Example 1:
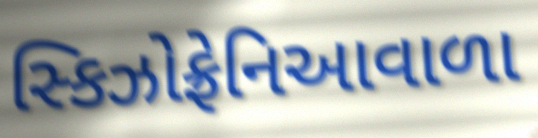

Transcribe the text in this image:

સ્કિઝોફ્રેનિઆવાળા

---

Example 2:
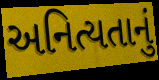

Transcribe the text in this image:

અનિત્યતાનું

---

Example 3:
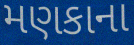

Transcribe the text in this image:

મણકાના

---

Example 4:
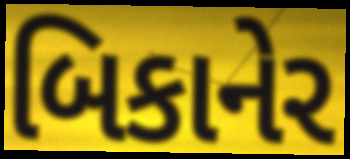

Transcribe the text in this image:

બિકાનેર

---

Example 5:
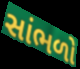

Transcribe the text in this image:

સાંભળો